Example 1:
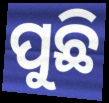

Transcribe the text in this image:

ପୁଛି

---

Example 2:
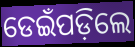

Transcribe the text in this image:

ଡେଇଁପଡ଼ିଲେ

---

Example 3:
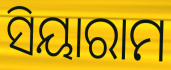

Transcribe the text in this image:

ସିୟାରାମ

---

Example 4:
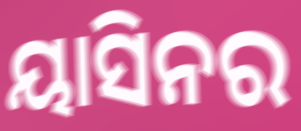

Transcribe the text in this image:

ୟାସିନର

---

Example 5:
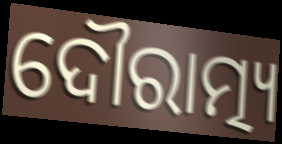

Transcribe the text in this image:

ଦୌରାତ୍ମ୍ୟ